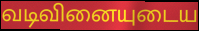
வடிவினையுடைய